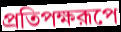
প্রতিপক্ষরূপে